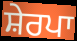
ਸ਼ੇਰਪਾ